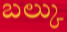
బల్కు